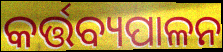
କର୍ତ୍ତବ୍ୟପାଳନ